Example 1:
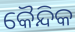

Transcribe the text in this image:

କୈନ୍ଦିକ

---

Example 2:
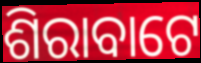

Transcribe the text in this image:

ଶିରାବାଟେ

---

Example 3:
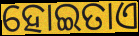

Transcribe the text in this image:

ହୋଇତାଏ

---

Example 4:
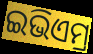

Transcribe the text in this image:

ଇଭିଏମ୍ର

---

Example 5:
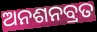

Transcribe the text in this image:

ଅନଶନବ୍ରତ